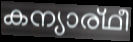
കന്യാര്ഥീ